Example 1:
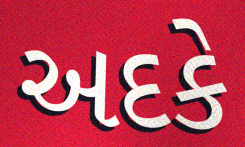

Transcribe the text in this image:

અદકે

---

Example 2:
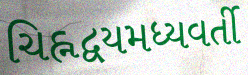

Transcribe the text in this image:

ચિહ્નદ્વયમધ્યવર્તી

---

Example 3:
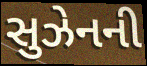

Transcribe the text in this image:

સુઝેનની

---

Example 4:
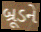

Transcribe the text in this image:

બ્રૂડને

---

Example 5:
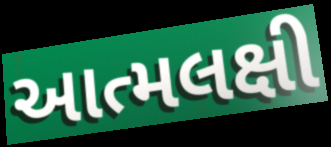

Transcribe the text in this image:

આત્મલક્ષી